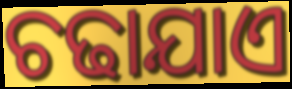
ଚଢାଯାଏ